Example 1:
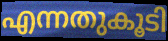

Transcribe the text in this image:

എന്നതുകൂടി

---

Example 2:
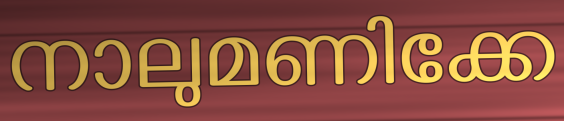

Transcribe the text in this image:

നാലുമണിക്കേ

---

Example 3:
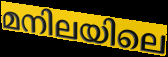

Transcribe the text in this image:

മനിലയിലെ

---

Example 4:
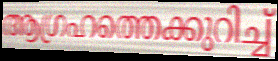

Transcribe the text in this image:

ആഗ്രഹത്തെക്കുറിച്ച്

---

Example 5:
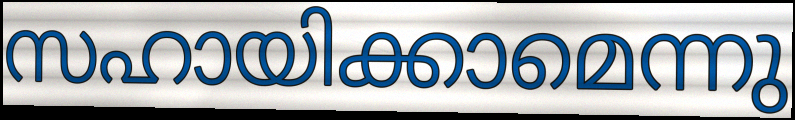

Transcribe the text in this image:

സഹായിക്കാമെന്നു